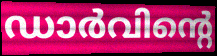
ഡാർവിന്റെ